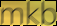
mkb